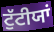
ਟੁੱਟੀਯਾਂ